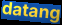
datang